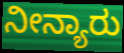
ನೀನ್ಯಾರು